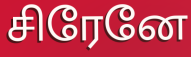
சிரேனே